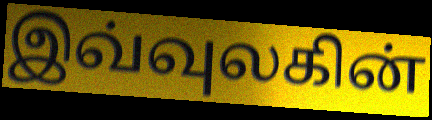
இவ்வுலகின்